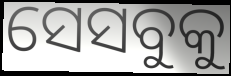
ସେସବୁକୁ